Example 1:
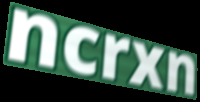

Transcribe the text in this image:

ncrxn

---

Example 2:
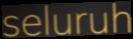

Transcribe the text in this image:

seluruh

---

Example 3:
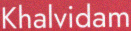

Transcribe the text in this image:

Khalvidam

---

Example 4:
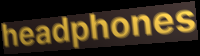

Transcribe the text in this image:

headphones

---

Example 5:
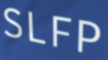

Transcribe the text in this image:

SLFP